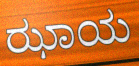
ಝಾಯ